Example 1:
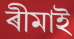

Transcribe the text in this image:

ৰীমাই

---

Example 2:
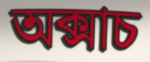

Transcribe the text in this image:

অক্সাচ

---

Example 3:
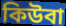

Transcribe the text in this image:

কিউবা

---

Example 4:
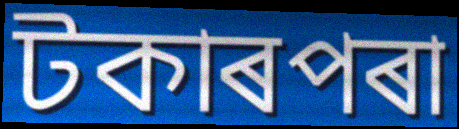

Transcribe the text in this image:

টকাৰপৰা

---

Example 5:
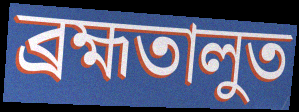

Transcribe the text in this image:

ব্ৰহ্মতালুত